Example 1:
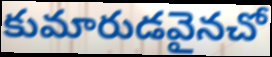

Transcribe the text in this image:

కుమారుడవైనచో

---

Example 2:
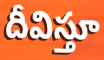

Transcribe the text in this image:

దీవిస్తూ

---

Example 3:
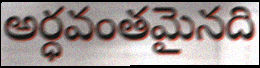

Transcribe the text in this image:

అర్ధవంతమైనది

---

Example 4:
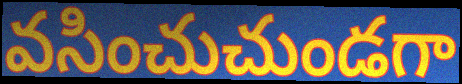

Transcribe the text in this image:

వసించుచుండగా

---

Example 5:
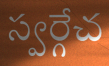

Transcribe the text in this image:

స్వర్గేచ